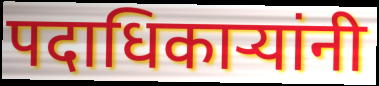
पदाधिकाऱ्यांनी